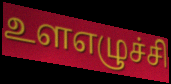
உளஎழுச்சி